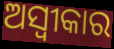
ଅସ୍ବୀକାର